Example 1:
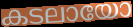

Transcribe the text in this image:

കടലായോ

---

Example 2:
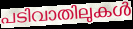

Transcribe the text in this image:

പടിവാതിലുകൾ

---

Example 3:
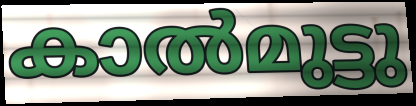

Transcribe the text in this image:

കാൽമുട്ടു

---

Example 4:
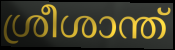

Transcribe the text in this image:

ശ്രീശാന്ത്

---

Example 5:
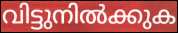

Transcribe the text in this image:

വിട്ടുനിൽക്കുക